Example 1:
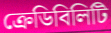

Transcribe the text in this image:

ক্রেডিবিলিটি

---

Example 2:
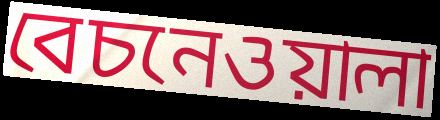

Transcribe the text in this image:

বেচনেওয়ালা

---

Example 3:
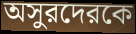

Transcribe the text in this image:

অসুরদেরকে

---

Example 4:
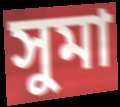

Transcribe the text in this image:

সুমা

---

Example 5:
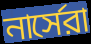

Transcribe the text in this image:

নার্সেরা